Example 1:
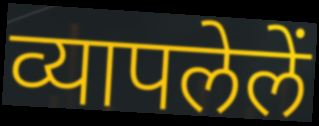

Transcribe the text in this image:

व्यापलेलें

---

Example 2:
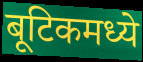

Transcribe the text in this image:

बूटिकमध्ये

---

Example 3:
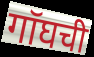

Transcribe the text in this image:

गॉघची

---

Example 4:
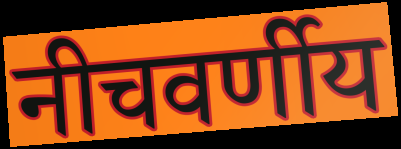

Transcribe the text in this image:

नीचवर्णीय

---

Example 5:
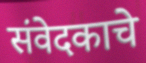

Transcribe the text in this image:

संवेदकाचे